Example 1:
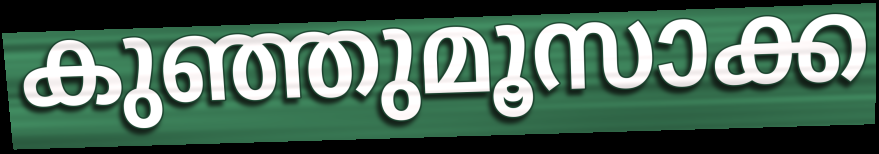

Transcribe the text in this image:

കുഞ്ഞുമൂസാക്ക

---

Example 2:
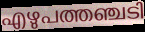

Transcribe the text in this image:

എഴുപത്തഞ്ചടി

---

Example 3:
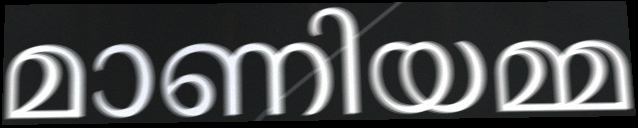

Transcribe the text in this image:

മാണിയമ്മ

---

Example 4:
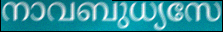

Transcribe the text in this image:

നാവബുധ്യസേ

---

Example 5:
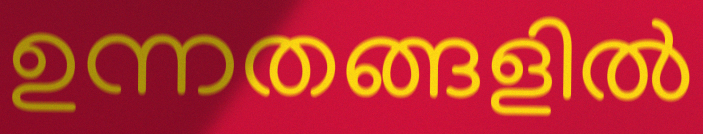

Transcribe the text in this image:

ഉന്നതങ്ങളിൽ